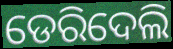
ଡେରିଦେଲି